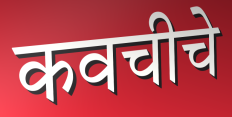
कवचीचे